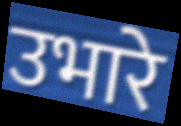
उभारे